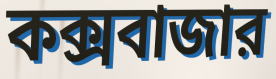
কক্সবাজার